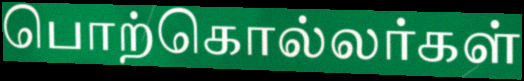
பொற்கொல்லர்கள்